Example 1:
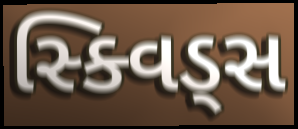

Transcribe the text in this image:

સ્ક્વિડ્સ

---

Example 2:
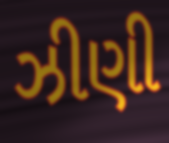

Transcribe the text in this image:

ઝીણી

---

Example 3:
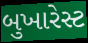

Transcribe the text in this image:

બુખારેસ્ટ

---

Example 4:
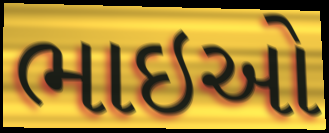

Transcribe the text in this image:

ભાઇઓ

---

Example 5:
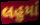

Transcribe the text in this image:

લહુમાં